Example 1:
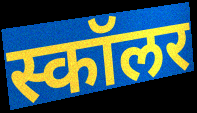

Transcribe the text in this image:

स्कॉलर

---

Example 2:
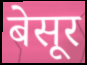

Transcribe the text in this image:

बेसूर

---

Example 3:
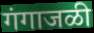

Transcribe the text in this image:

गंगाजळी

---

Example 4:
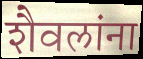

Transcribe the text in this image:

शैवलांना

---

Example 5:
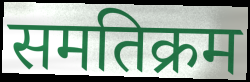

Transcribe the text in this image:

समतिक्रम